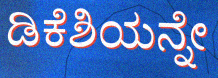
ಡಿಕೆಶಿಯನ್ನೇ